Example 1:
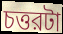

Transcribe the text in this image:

চত্তরটা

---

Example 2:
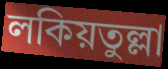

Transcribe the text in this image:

লকিয়তুল্লা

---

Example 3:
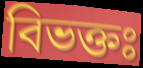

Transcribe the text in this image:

বিভক্তঃ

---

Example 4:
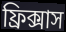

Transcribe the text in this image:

ফ্রিক্সাস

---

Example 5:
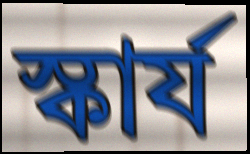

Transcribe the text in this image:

স্কার্য